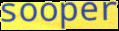
sooper